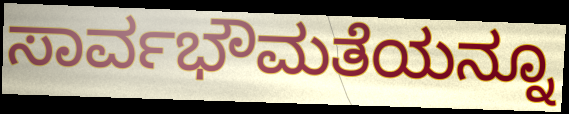
ಸಾರ್ವಭೌಮತೆಯನ್ನೂ